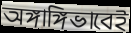
অঙ্গাঙ্গিভাবেই